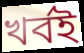
খর্বই